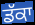
ਡੱਕਾ